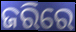
ଜରିରେ